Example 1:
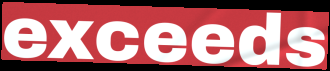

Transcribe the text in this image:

exceeds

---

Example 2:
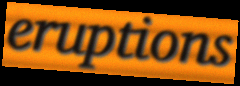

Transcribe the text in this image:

eruptions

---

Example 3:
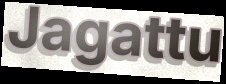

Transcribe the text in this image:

Jagattu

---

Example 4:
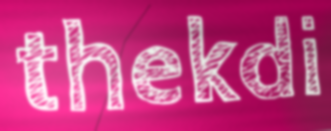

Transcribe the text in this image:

thekdi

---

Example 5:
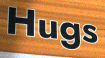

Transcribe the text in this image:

Hugs